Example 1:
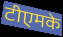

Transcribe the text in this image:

टीएमके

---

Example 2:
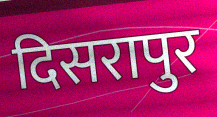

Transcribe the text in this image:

दिसरापुर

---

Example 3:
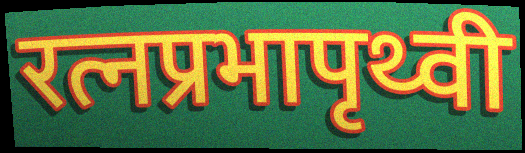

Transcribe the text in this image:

रत्नप्रभापृथ्वी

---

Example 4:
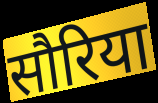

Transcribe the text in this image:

सौरिया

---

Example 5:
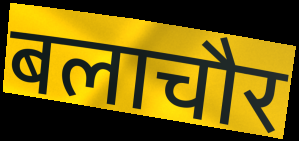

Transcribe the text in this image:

बलाचौर